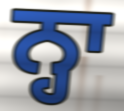
ਨ੍ਹਾ